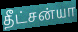
தீட்சன்யா